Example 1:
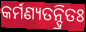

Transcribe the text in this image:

କର୍ମଣ୍ୟତନ୍ଦ୍ରିତଃ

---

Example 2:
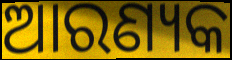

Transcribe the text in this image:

ଆରଣ୍ୟକ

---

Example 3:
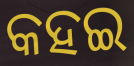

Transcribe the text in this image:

କହଇ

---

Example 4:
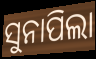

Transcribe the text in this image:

ସୁନାପିଲା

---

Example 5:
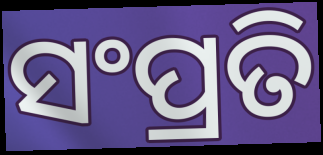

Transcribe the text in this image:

ସଂପ୍ରତି